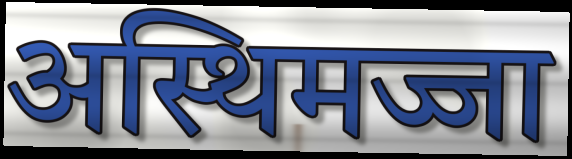
अस्थिमज्जा